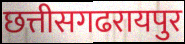
छत्तीसगढरायपुर